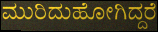
ಮುರಿದುಹೋಗಿದ್ದರೆ